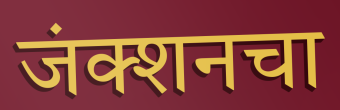
जंक्‍शनचा